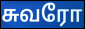
சுவரோ